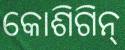
କୋଶିଗିନ୍